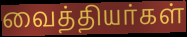
வைத்தியர்கள்